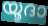
യൂദാ